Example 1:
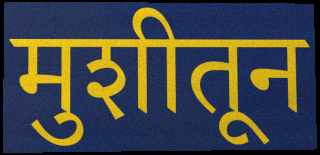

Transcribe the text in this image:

मुशीतून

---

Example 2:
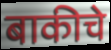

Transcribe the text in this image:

बाकीचे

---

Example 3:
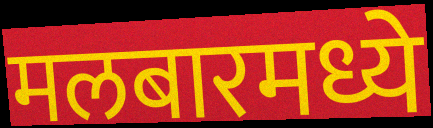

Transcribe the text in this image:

मलबारमध्ये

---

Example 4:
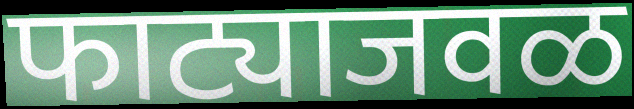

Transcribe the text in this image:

फाट्याजवळ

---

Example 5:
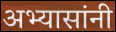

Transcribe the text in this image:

अभ्यासांनी